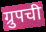
ग्रुपची